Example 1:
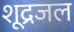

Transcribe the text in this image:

शूद्रजल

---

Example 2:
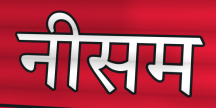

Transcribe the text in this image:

नीसम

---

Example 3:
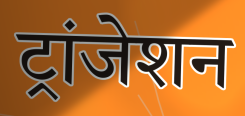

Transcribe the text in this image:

ट्रांजेशन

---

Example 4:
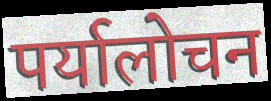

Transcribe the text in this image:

पर्यालोचन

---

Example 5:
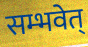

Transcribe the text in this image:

सम्भवेत्